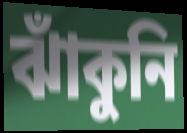
ঝাঁকুনি